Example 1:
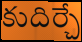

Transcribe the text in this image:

కుదిర్చే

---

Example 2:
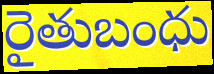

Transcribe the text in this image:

రైతుబంధు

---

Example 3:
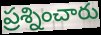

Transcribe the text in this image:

ప్రశ్నించారు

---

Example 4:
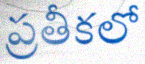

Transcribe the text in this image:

ప్రతీకలో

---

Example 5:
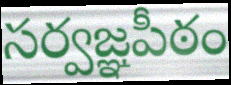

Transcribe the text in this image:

సర్వజ్ఞపీఠం